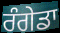
ਰੰਗੇਡਾ